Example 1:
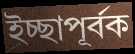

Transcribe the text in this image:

ইচ্ছাপূর্বক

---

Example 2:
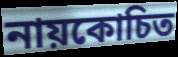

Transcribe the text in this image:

নায়কোচিত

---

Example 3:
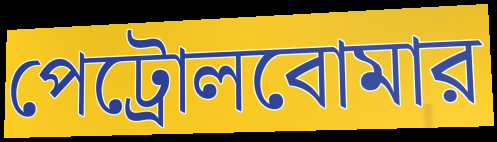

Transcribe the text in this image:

পেট্রোলবোমার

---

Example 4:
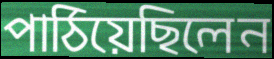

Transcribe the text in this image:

পাঠিয়েছিলেন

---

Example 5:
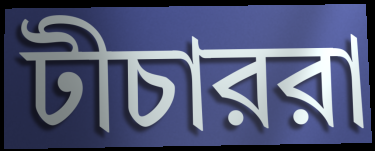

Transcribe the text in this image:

টীচাররা